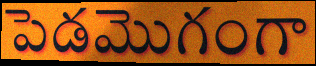
పెడమొగంగా